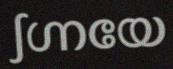
ഽഗ്നയേ